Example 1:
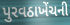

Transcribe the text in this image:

પુરવઠાખેંચની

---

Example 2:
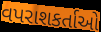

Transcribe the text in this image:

વપરાશકર્તાઓ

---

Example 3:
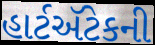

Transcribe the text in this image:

હાર્ટઍટેકની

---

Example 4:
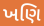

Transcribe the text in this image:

ખણિ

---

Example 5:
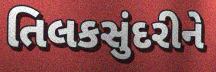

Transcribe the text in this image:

તિલકસુંદરીને